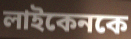
লাইকেনকে